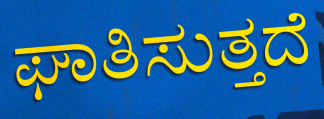
ಘಾತಿಸುತ್ತದೆ